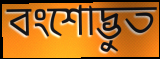
বংশোদ্ভুত